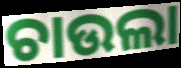
ଚାଉଲା